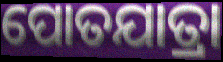
ପୋତଯାତ୍ରା